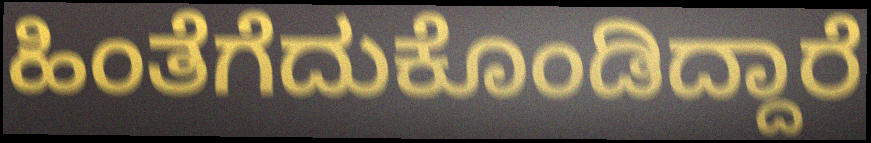
ಹಿಂತೆಗೆದುಕೊಂಡಿದ್ದಾರೆ